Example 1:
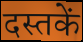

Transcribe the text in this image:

दस्तकें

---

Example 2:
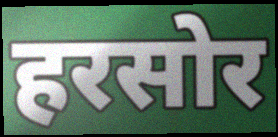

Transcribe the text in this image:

हरसोर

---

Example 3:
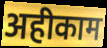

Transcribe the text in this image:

अहीकाम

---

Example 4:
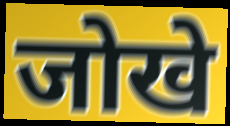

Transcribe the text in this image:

जोखे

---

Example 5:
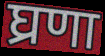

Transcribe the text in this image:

घ्रणा